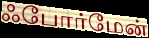
ஃபோர்மேன்